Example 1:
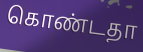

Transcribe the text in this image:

கொண்டதா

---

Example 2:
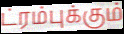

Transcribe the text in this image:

ட்ரம்புக்கும்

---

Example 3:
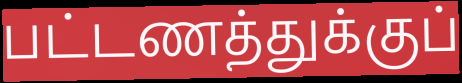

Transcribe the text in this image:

பட்டணத்துக்குப்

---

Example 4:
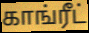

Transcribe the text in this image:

காங்ரீட்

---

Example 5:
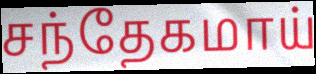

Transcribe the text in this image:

சந்தேகமாய்